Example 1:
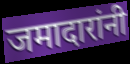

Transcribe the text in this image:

जमादारांनी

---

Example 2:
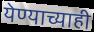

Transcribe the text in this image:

येण्याच्याही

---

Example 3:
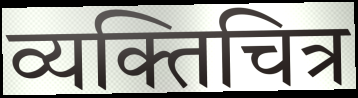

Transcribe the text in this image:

व्यक्तिचित्र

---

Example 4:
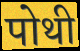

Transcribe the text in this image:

पोथी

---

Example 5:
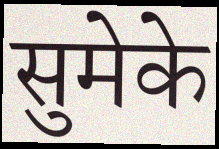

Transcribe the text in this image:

सुमेके